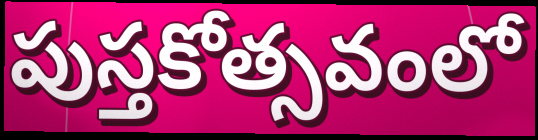
పుస్తకోత్సవంలో